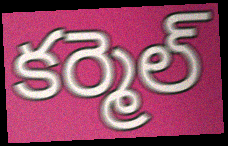
కర్మెల్